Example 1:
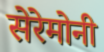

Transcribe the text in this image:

सेरेमोनी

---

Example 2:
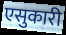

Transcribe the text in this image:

एसुकारी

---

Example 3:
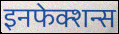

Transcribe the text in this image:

इनफेक्शन्स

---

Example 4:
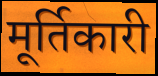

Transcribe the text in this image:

मूर्तिकारी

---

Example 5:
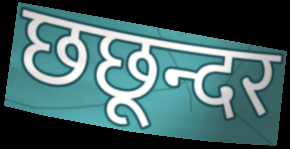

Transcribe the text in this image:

छछून्दर